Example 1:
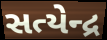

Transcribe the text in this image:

સત્યેન્દ્ર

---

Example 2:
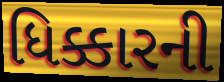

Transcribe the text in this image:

ધિક્કારની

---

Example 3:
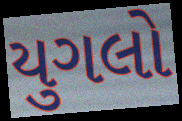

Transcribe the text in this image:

યુગલો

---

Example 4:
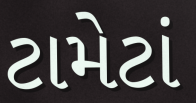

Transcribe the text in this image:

ટામેટાં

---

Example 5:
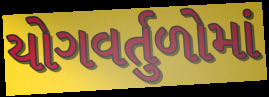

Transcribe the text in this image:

યોગવર્તુળોમાં